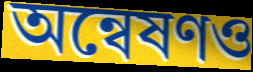
অন্বেষণও